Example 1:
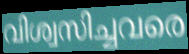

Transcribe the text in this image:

വിശ്വസിച്ചവരെ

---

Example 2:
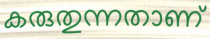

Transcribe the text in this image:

കരുതുന്നതാണ്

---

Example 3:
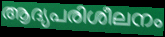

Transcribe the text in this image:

ആദ്യപരിശീലനം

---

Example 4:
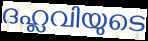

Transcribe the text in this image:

ദഹ്ലവിയുടെ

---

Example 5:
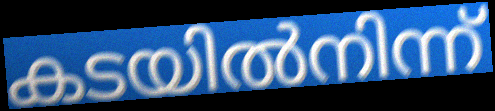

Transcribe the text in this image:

കടയിൽനിന്ന്